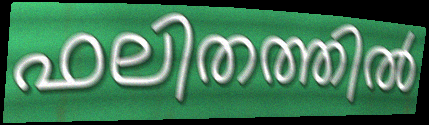
ഫലിതത്തിൽ